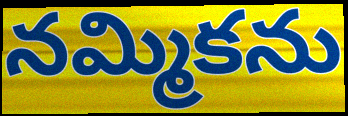
నమ్మికను